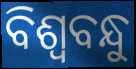
ବିଶ୍ୱବନ୍ଧୁ